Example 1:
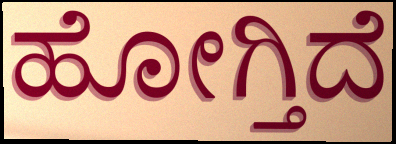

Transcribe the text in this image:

ಹೋಗ್ತಿದೆ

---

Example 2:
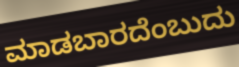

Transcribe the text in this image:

ಮಾಡಬಾರದೆಂಬುದು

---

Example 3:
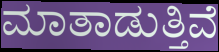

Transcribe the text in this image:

ಮಾತಾಡುತ್ತಿವೆ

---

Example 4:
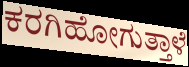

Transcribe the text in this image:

ಕರಗಿಹೋಗುತ್ತಾಳೆ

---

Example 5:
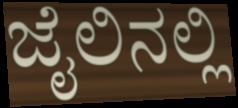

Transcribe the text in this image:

ಜೈಲಿನಲ್ಲಿ